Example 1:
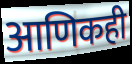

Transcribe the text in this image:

आणिकही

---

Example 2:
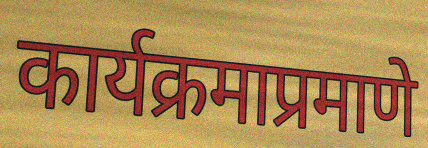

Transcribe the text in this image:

कार्यक्रमाप्रमाणे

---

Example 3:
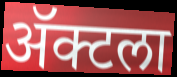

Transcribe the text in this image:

ॲक्टला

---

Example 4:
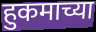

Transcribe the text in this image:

हुकमाच्या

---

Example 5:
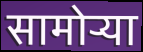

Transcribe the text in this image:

सामोऱ्या